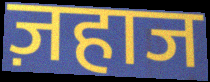
ज़हाज